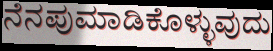
ನೆನಪುಮಾಡಿಕೊಳ್ಳುವುದು